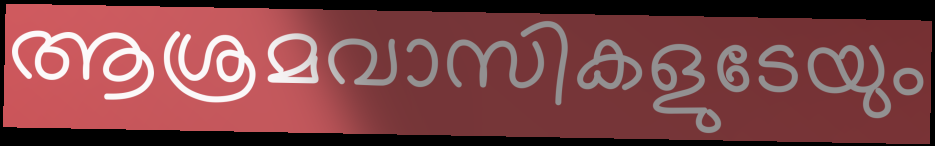
ആശ്രമവാസികളുടേയും